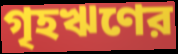
গৃহঋণের